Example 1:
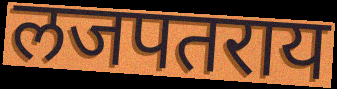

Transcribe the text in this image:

लजपतराय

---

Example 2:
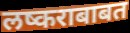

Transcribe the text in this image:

लष्कराबाबत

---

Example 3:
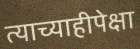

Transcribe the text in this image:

त्याच्याहीपेक्षा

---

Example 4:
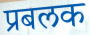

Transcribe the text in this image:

प्रबलक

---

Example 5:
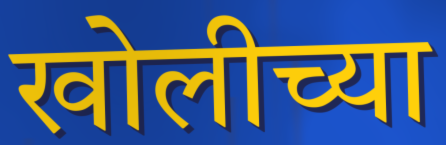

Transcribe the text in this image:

खोलीच्या